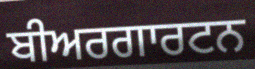
ਬੀਅਰਗਾਰਟਨ